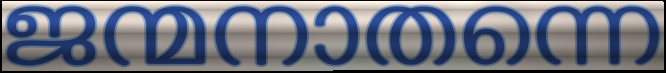
ജന്മനാതന്നെ